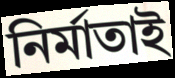
নির্মাতাই